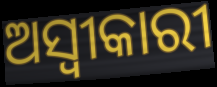
ଅସ୍ୱୀକାରୀ